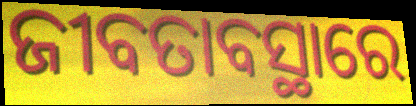
ଜୀବତାବସ୍ଥାରେ